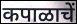
कपाळाचें